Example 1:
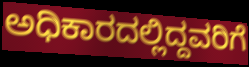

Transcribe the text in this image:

ಅಧಿಕಾರದಲ್ಲಿದ್ದವರಿಗೆ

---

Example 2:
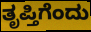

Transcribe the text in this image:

ತೃಪ್ತಿಗೆಂದು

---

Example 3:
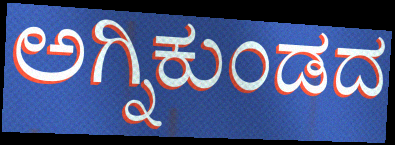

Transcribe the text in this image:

ಅಗ್ನಿಕುಂಡದ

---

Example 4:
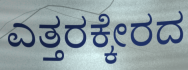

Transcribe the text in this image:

ಎತ್ತರಕ್ಕೇರದ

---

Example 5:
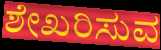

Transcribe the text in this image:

ಶೇಖರಿಸುವ